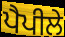
ਪੈਪੀਲੇ